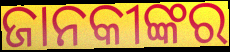
ଜାନକୀଙ୍କର